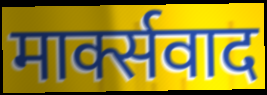
मार्क्सवाद